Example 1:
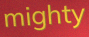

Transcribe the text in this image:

mighty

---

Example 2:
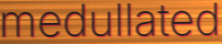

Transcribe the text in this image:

medullated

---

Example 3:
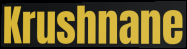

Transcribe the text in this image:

Krushnane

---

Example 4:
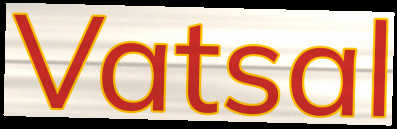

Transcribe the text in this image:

Vatsal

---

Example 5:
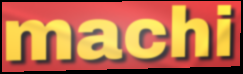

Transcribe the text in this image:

machi